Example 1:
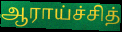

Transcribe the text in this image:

ஆராய்ச்சித்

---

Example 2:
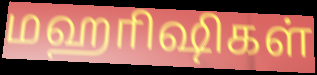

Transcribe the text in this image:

மஹரிஷிகள்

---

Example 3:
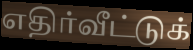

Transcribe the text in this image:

எதிர்வீட்டுக்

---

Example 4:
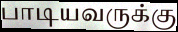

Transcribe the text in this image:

பாடியவருக்கு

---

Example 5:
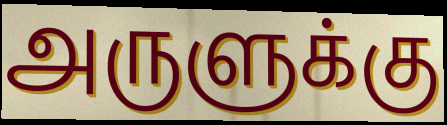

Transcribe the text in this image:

அருளுக்கு